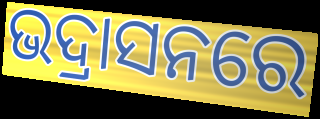
ଭଦ୍ରାସନରେ